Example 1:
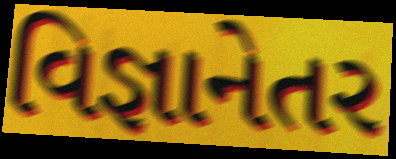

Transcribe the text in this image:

વિજ્ઞાનેતર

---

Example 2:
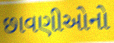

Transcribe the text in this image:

છાવણીઓનો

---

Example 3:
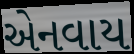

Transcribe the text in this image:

એનવાય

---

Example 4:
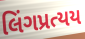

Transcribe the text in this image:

લિંગપ્રત્યય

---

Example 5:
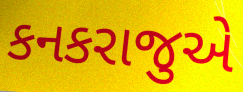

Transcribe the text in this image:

કનકરાજુએ